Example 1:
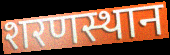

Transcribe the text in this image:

शरणस्थान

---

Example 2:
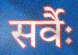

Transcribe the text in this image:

सर्वैः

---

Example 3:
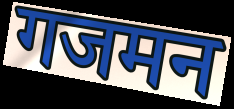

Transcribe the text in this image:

गजमन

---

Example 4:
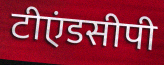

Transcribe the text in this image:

टीएंडसीपी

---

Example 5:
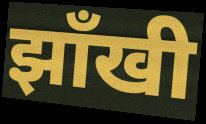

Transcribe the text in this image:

झाँखी